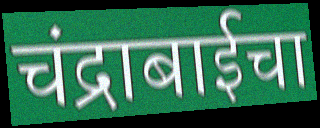
चंद्राबाईचा